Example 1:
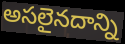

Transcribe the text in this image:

అసలైనదాన్ని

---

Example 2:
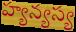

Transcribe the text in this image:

హ్యన్యస్య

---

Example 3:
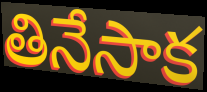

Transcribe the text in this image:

తినేసాక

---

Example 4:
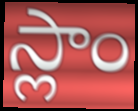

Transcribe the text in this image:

స్లాం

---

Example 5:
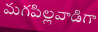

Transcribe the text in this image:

మగపిల్లవాడిగా